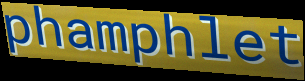
phamphlet